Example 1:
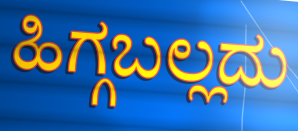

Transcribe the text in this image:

ಹಿಗ್ಗಬಲ್ಲದು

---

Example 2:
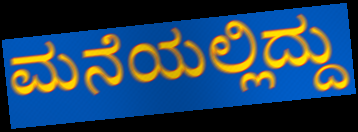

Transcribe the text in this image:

ಮನೆಯಲ್ಲಿದ್ದು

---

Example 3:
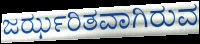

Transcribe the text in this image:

ಜರ್ಝರಿತವಾಗಿರುವ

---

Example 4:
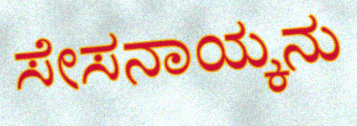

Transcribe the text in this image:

ಸೇಸನಾಯ್ಕನು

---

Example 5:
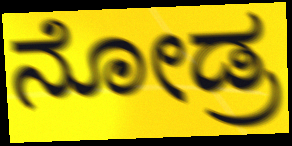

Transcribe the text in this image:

ನೋಡ್ರ